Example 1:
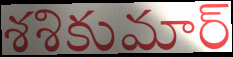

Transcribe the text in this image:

శశికుమార్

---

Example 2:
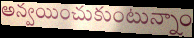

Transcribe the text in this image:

అన్వయించుకుంటున్నాం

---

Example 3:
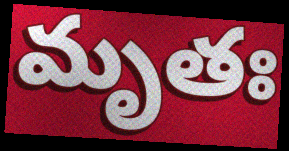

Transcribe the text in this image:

మృతః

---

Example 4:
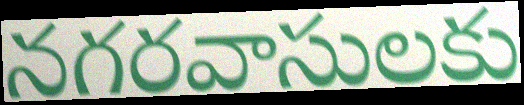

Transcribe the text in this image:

నగరవాసులకు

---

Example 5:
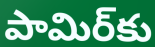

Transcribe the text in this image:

పామిర్‌కు